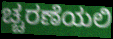
ಚ್ಚರಣೆಯಲಿ